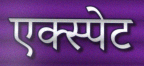
एक्स्पेट